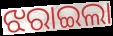
ଝରାଇଲା